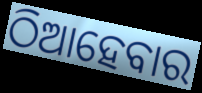
ଠିଆହେବାର